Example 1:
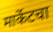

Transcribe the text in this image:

मार्केटचा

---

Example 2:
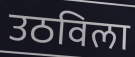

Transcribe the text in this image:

उठविला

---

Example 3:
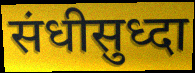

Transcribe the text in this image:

संधीसुध्दा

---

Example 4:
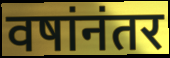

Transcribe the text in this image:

वषांनंतर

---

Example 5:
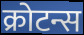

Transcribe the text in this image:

क्रोटन्स